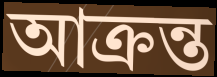
আক্রন্ত